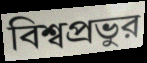
বিশ্বপ্রভুর